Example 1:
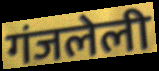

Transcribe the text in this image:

गंजलेली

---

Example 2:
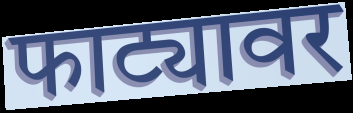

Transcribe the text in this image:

फाट्यावर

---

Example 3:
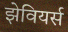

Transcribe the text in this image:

झेवियर्स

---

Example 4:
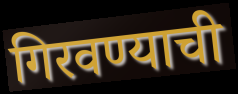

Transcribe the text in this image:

गिरवण्याची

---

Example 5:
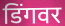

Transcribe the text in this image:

डिंगवर